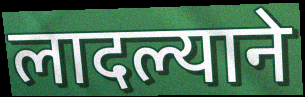
लादल्याने